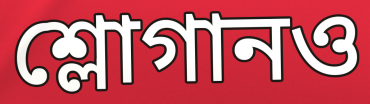
শ্লোগানও